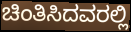
ಚಿಂತಿಸಿದವರಲ್ಲಿ